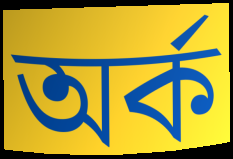
অর্ক